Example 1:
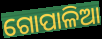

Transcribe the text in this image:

ଗୋପାଳିଆ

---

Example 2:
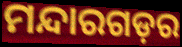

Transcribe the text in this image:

ମନ୍ଦାରଗଡ଼ର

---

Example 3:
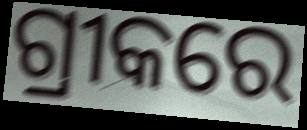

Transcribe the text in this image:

ଗ୍ରୀକରେ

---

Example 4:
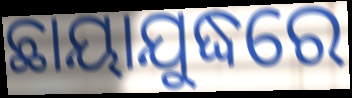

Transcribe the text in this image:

ଛାୟାଯୁଦ୍ଧରେ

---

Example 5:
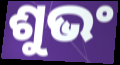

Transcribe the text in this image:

ଶୁଭଂ